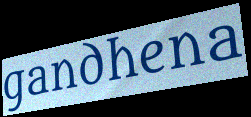
gandhena